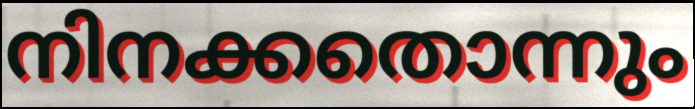
നിനക്കതൊന്നും